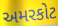
અમરકોટ